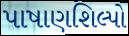
પાષાણશિલ્પો